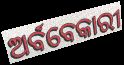
ଅର୍ବବେକାରୀ